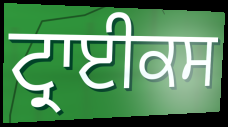
ਟ੍ਰਾਈਕਸ